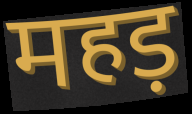
महड़